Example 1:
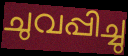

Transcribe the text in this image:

ചുവപ്പിച്ചു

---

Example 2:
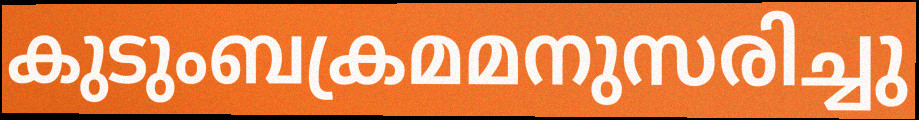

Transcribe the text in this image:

കുടുംബക്രമമനുസരിച്ചു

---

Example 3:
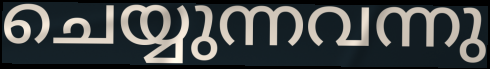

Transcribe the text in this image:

ചെയ്യുന്നവന്നു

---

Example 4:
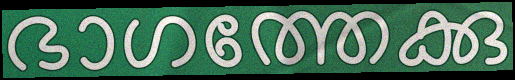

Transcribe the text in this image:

ഭാഗത്തേക്കു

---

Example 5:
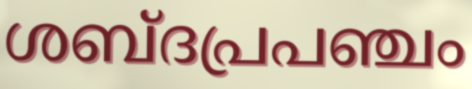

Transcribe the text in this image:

ശബ്ദപ്രപഞ്ചം